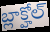
బ్లాక్హోల్